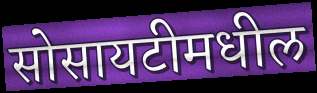
सोसायटीमधील